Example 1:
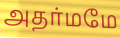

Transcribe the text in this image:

அதர்மமே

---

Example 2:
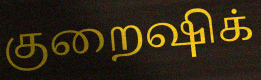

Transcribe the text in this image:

குறைஷிக்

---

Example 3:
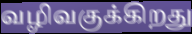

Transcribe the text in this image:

வழிவகுக்கிறது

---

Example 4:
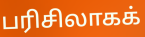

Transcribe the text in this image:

பரிசிலாகக்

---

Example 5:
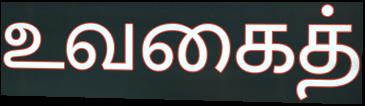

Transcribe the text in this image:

உவகைத்